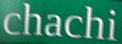
chachi